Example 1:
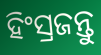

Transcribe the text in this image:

ହିଂସ୍ରଜନ୍ତୁ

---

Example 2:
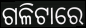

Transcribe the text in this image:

ଗଳିଟାରେ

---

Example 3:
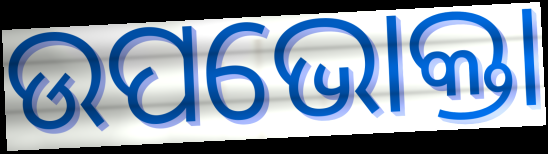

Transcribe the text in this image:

ଉପଭୋକ୍ତା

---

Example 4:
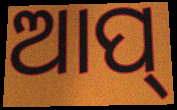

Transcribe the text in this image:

ଆପ୍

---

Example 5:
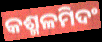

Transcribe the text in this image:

କଶ୍ମଳମିଦଂ